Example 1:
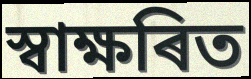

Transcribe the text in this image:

স্বাক্ষৰিত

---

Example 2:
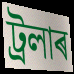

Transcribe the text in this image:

ট্ৰলাৰ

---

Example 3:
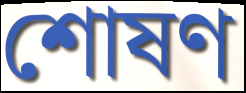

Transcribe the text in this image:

শোষণ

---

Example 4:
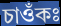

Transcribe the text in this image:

চাওঁকঃ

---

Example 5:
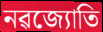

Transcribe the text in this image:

নৱজ্যোতি